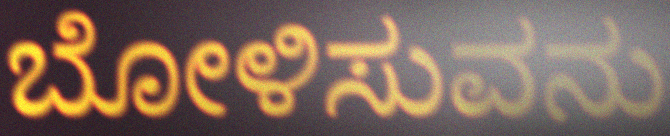
ಬೋಳಿಸುವನು